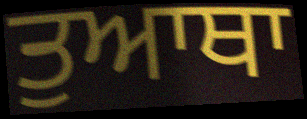
ਤੁਆਥਾ